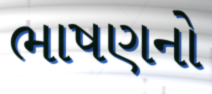
ભાષણનો